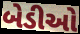
બેડીઓ